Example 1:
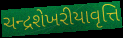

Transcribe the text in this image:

ચન્દ્રશેખરીયાવૃત્તિ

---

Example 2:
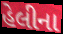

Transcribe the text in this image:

હેલીના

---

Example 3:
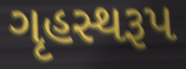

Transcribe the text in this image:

ગૃહસ્થરૂપ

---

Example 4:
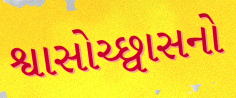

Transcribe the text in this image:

શ્વાસોચ્છ્વાસનો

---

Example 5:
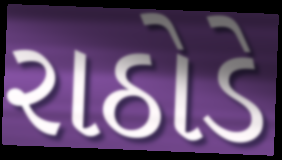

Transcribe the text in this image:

રાઠોડે